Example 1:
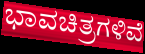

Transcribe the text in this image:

ಭಾವಚಿತ್ರಗಳಿವೆ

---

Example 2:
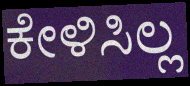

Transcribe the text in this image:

ಕೇಳಿಸಿಲ್ಲ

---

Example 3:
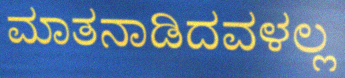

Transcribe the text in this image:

ಮಾತನಾಡಿದವಳಲ್ಲ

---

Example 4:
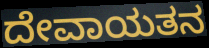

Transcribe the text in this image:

ದೇವಾಯತನ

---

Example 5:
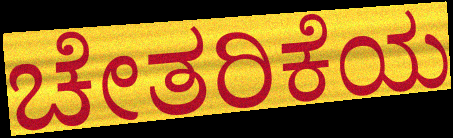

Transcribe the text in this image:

ಚೇತರಿಕೆಯ